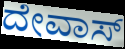
ದೇವಾಸ್